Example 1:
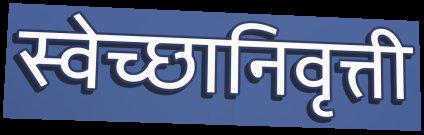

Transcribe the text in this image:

स्वेच्छानिवृत्ती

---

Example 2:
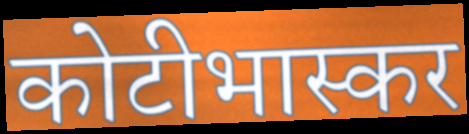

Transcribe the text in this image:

कोटीभास्कर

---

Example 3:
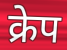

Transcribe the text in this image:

क्रेप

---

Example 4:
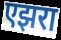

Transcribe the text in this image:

एझरा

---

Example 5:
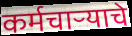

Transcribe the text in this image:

कर्मचाऱ्याचे